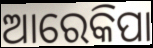
ଆରେକିପା